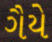
ગૈયે